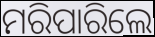
ମରିପାରିଲେ